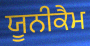
ਯੂਨੀਕੈਮ